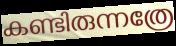
കണ്ടിരുന്നത്രേ